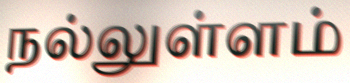
நல்லுள்ளம்